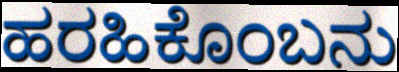
ಹರಹಿಕೊಂಬನು